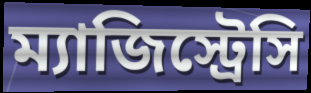
ম্যাজিস্ট্রেসি